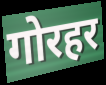
गोरहर